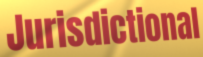
Jurisdictional